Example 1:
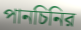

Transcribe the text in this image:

পানচিনির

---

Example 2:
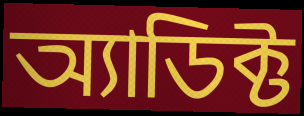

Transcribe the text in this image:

অ্যাডিক্ট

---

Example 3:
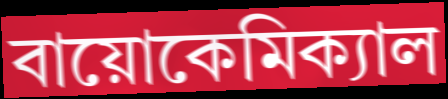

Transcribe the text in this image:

বায়োকেমিক্যাল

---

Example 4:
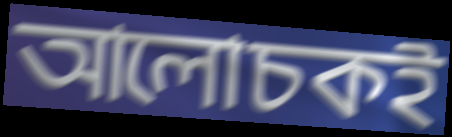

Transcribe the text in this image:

আলোচকই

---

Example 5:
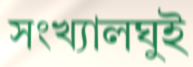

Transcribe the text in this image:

সংখ্যালঘুই